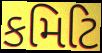
કમિટિ